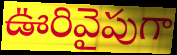
ఊరివైపుగా